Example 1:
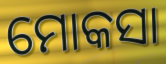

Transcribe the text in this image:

ମୋକସା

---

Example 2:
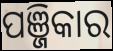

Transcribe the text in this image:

ପଞ୍ଜିକାର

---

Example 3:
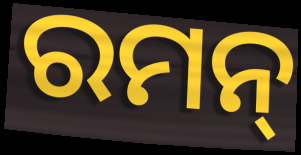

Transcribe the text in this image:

ରମନ୍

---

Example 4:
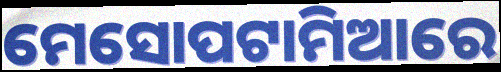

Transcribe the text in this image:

ମେସୋପଟାମିଆରେ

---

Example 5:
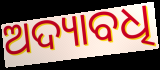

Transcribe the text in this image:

ଅଦ୍ୟାବଧି